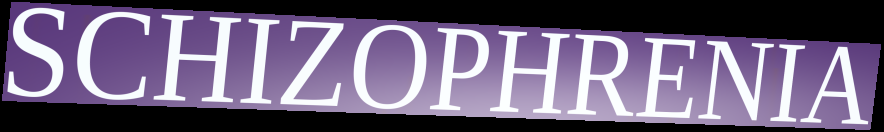
SCHIZOPHRENIA